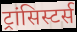
ट्रांसिस्टर्स